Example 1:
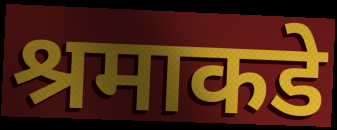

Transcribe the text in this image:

श्रमाकडे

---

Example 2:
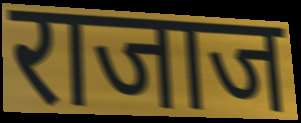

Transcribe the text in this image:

राजाज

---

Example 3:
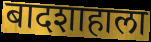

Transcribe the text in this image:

बादशाहाला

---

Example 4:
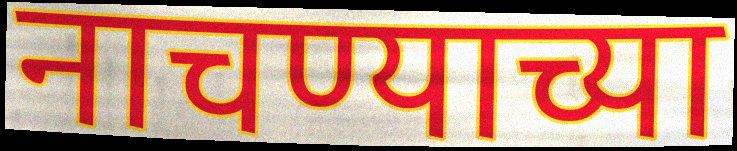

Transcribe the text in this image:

नाचण्याच्या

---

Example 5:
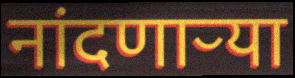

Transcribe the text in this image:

नांदणाऱ्या